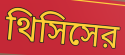
থিসিসের